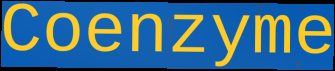
Coenzyme